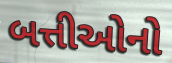
બત્તીઓનો